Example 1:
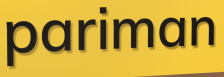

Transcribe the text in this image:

pariman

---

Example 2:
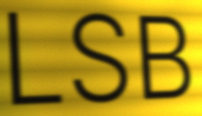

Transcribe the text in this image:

LSB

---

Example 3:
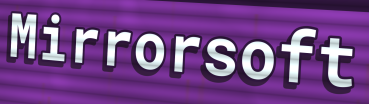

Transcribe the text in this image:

Mirrorsoft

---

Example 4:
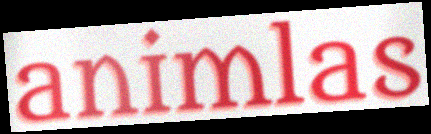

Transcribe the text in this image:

animlas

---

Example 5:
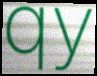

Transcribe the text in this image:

qy